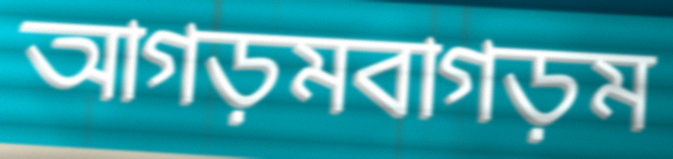
আগড়মবাগড়ম